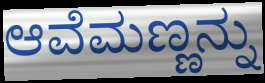
ಆವೆಮಣ್ಣನ್ನು